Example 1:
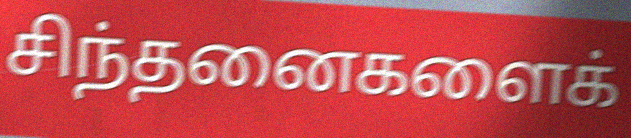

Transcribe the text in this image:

சிந்தனைகளைக்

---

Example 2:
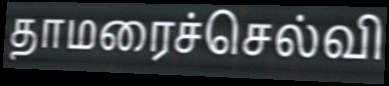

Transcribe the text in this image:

தாமரைச்செல்வி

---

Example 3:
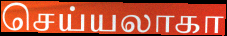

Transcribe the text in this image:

செய்யலாகா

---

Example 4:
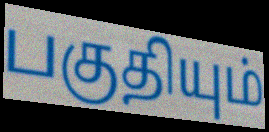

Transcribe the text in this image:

பகுதியும்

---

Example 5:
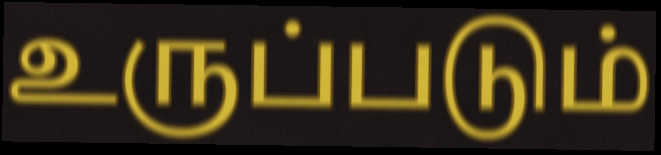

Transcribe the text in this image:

உருப்படும்